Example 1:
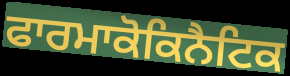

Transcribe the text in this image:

ਫਾਰਮਾਕੋਕਿਨੈਟਿਕ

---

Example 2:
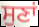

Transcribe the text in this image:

ਸੁਣਾਂ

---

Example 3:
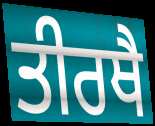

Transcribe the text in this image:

ਤੀਰਥੈ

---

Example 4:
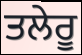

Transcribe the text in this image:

ਤਲੇਰੂ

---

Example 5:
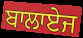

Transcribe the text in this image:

ਬਾਲਾਏਜ